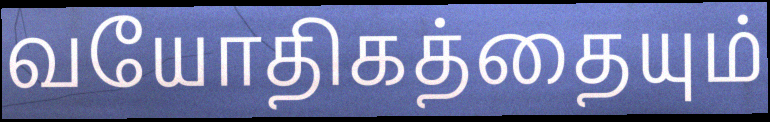
வயோதிகத்தையும்